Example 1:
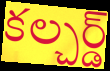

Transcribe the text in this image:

కల్చర్డ్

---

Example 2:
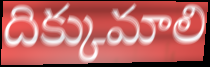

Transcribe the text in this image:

దిక్కుమాలి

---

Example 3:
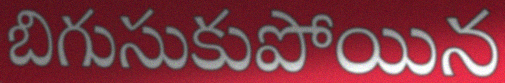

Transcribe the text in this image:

బిగుసుకుపోయిన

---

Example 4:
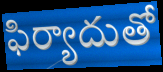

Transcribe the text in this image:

ఫిర్యాదుతో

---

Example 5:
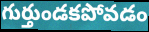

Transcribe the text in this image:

గుర్తుండకపోవడం